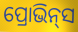
ପ୍ରୋଭିନ୍‌ସ